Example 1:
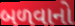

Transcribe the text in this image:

બળવાનો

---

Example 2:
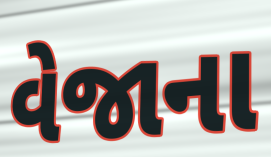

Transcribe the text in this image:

વેજાના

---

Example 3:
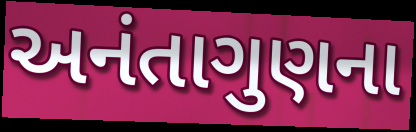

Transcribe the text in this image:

અનંતાગુણના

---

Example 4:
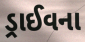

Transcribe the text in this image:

ડ્રાઈવના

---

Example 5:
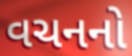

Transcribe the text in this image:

વચનનો